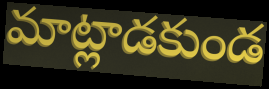
మాట్లాడకుండ